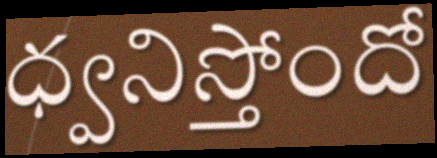
ధ్వనిస్తోందో